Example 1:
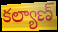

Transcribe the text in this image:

కల్యాణ్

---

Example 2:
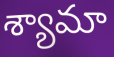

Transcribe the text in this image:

శ్యామా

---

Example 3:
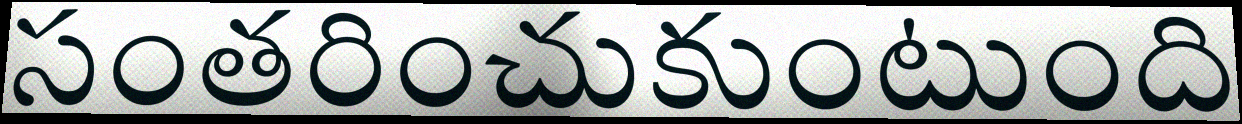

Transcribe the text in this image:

సంతరించుకుంటుంది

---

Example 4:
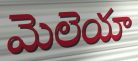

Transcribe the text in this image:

మెలెయా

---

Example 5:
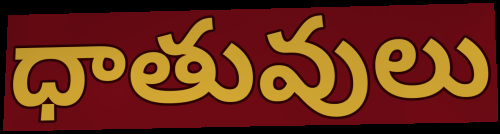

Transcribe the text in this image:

ధాతువులు